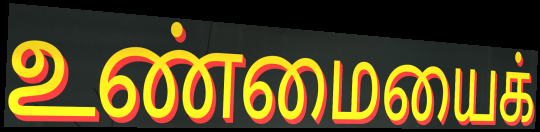
உண்மையைக்